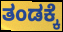
ತಂಡಕ್ಕೆ